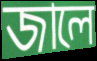
জালে